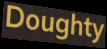
Doughty